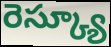
రెస్క్యూ